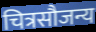
चित्रसौजन्य